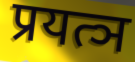
प्रयत्ञ